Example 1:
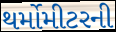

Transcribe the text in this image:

થર્મોમીટરની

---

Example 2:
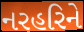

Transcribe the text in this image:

નરહરિને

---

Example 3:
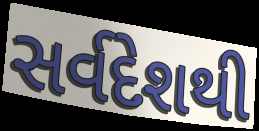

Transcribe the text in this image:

સર્વદેશથી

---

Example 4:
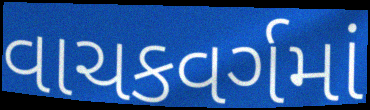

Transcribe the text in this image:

વાચકવર્ગમાં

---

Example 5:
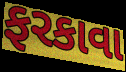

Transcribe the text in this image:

ફરકાવા